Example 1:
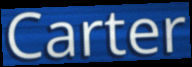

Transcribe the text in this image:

Carter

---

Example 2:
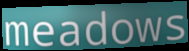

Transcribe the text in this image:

meadows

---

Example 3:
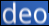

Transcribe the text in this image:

deo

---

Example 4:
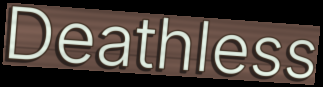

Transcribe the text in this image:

Deathless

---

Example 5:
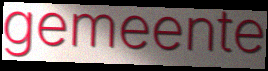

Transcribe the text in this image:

gemeente